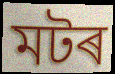
মটৰ